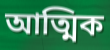
আত্মিক